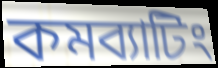
কমব্যাটিং